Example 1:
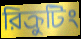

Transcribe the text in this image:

রিক্রুটিং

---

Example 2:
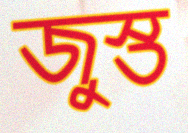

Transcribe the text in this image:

জুস্ত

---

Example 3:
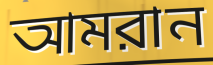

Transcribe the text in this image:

আমরান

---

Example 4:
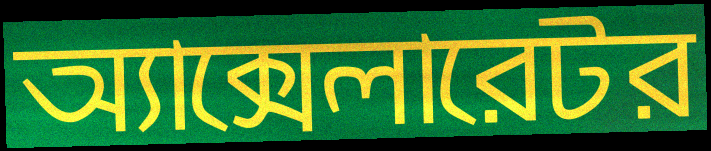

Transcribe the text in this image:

অ্যাক্সেলারেটর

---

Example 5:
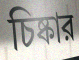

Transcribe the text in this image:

চিষ্কার